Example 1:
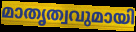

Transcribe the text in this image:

മാതൃത്വവുമായി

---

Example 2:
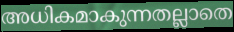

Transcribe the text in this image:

അധികമാകുന്നതല്ലാതെ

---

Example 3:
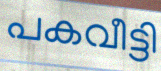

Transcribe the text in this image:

പകവീട്ടി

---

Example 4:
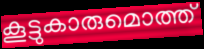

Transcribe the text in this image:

കൂട്ടുകാരുമൊത്ത്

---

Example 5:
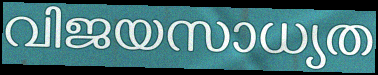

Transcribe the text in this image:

വിജയസാധ്യത